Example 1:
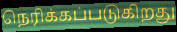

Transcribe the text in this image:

நெரிக்கப்படுகிறது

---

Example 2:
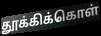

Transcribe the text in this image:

தூக்கிக்கொள்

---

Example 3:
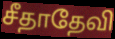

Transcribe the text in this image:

சீதாதேவி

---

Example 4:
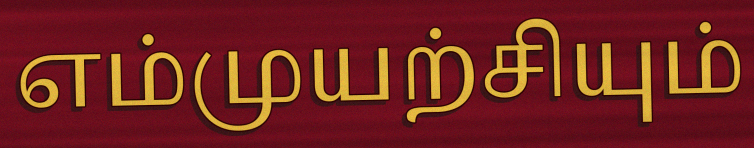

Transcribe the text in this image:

எம்முயற்சியும்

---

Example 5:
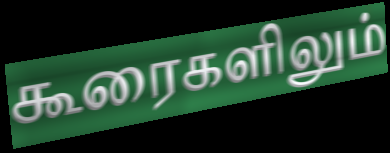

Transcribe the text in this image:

கூரைகளிலும்